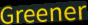
Greener